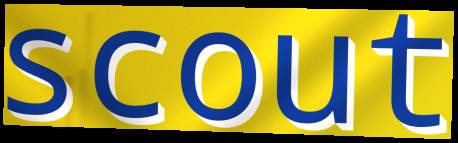
scout